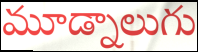
మూడ్నాలుగు